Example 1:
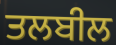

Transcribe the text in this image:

ਤਲਬੀਲ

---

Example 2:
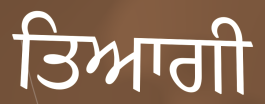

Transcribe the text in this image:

ਤਿਆਗੀ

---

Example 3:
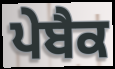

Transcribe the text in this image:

ਪੇਬੈਕ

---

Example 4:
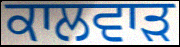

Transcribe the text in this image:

ਕਾਲਵਾੜ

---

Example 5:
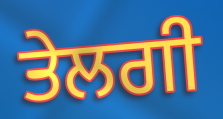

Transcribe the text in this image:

ਤੇਲਗੀ